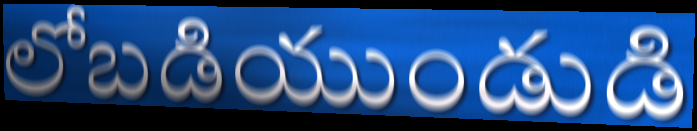
లోబడియుండుడి